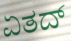
ಏತದ್